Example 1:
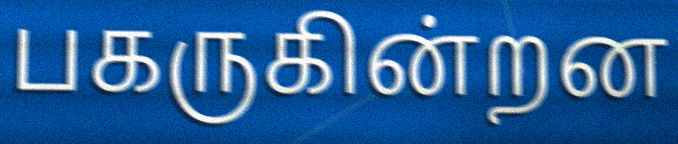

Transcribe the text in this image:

பகருகின்றன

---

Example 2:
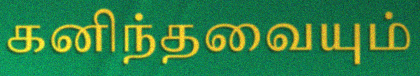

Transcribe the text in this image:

கனிந்தவையும்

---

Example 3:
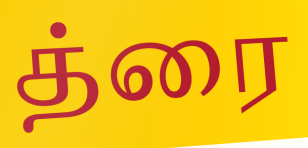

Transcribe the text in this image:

த்ரை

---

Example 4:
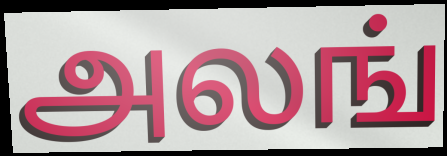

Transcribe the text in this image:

அலங்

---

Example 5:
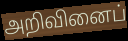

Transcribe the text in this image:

அறிவினைப்